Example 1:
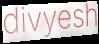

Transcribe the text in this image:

divyesh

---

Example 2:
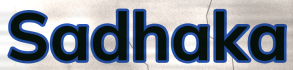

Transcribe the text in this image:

Sadhaka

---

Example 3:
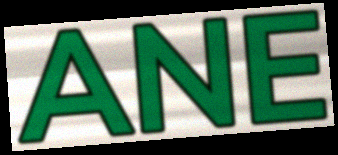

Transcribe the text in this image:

ANE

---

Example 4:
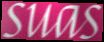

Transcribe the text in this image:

suas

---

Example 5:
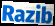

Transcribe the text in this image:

Razib